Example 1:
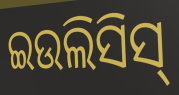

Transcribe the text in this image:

ଇଉଲିସିସ୍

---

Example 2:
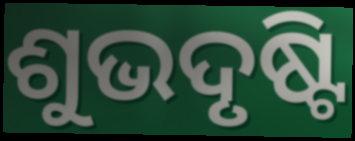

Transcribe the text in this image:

ଶୁଭଦୃଷ୍ଟି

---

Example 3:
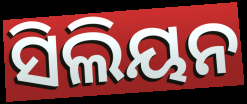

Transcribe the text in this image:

ସିଲିୟନ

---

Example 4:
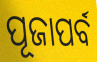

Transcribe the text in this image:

ପୂଜାପର୍ବ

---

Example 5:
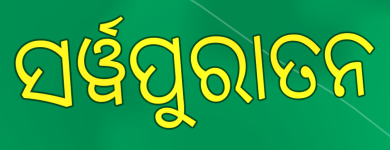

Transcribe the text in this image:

ସର୍ୱପୁରାତନ